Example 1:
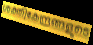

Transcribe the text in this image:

ശക്തികേന്ദ്രങ്ങളുടെ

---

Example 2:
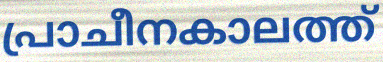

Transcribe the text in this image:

പ്രാചീനകാലത്ത്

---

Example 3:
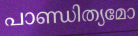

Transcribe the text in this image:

പാണ്ഡിത്യമോ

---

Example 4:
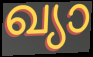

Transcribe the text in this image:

ഖ്യാ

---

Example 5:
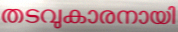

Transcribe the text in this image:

തടവുകാരനായി